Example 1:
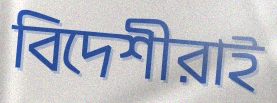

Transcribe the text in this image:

বিদেশীরাই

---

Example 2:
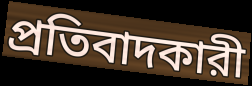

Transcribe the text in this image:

প্রতিবাদকারী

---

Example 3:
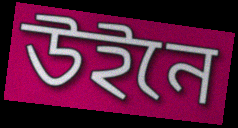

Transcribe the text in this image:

উইনে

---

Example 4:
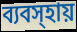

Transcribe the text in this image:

ব্যবস্হায়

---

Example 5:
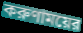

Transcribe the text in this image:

করুণাময়ের